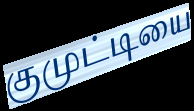
குமுட்டியை